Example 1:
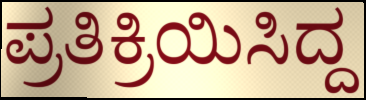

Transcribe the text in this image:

ಪ್ರತಿಕ್ರಿಯಿಸಿದ್ದ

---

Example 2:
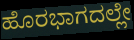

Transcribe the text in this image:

ಹೊರಭಾಗದಲ್ಲೇ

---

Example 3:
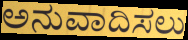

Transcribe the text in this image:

ಅನುವಾದಿಸಲು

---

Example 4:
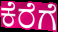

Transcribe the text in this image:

ಕೆರೆಗೆ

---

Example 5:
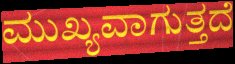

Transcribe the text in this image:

ಮುಖ್ಯವಾಗುತ್ತದೆ